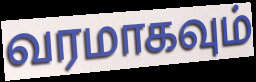
வரமாகவும்